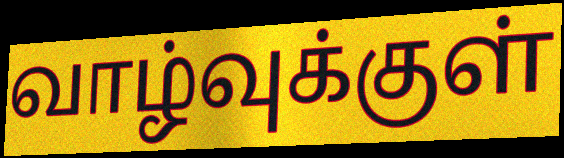
வாழ்வுக்குள்